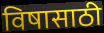
विषासाठी